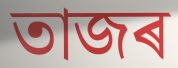
তাজৰ